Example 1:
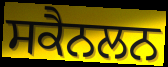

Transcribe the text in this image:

ਸਕੈਨਲਨ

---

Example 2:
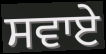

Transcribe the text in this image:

ਸਵਾਏ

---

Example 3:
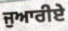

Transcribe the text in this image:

ਜੁਆਰੀਏ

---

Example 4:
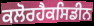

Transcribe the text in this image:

ਕਲੋਰਹੈਕਸਿਡੀਨ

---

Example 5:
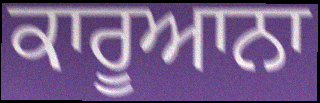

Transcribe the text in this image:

ਕਾਰੂਆਨਾ